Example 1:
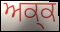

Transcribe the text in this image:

ਅਕ੍ਕ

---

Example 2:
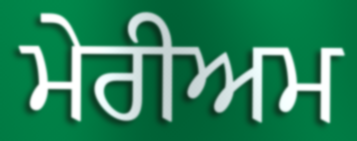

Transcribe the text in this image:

ਮੇਰੀਅਮ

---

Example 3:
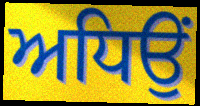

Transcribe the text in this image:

ਅਧਿਉਂ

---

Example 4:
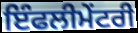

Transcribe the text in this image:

ਇੰਫਲੀਮੇਂਟਰੀ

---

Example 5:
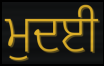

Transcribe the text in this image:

ਮੁਦਈ